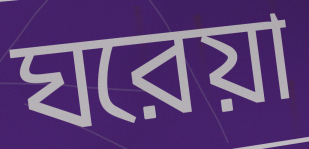
ঘরেয়া